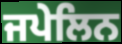
ਜਪੇਲਿਨ